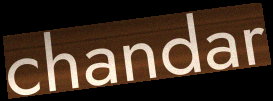
chandar